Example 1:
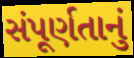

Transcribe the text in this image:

સંપૂર્ણતાનું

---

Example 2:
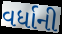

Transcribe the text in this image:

વર્ધાની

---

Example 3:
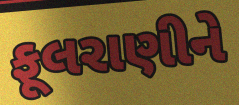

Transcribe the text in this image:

ફૂલરાણીને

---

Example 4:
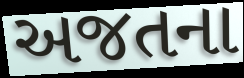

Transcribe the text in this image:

અજતના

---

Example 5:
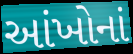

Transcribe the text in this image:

આંખોનાં